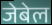
जेबेल